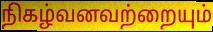
நிகழ்வனவற்றையும்